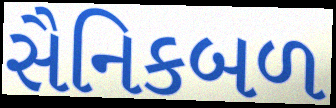
સૈનિકબળ